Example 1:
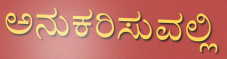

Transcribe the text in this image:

ಅನುಕರಿಸುವಲ್ಲಿ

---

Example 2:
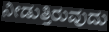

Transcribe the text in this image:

ನೀಡುತ್ತಿರುವುದು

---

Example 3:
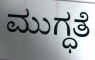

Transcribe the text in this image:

ಮುಗ್ಧತೆ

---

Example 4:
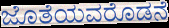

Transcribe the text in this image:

ಜೊತೆಯವರೊಡನೆ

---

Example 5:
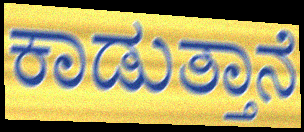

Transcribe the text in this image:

ಕಾಡುತ್ತಾನೆ